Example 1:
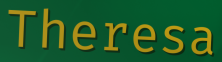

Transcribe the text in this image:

Theresa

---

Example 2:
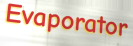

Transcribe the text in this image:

Evaporator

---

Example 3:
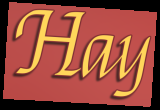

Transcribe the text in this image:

Hay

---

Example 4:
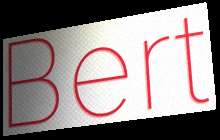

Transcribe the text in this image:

Bert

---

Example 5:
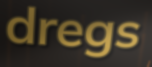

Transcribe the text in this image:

dregs